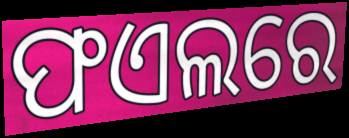
ଫଏଲରେ